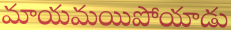
మాయమయిపోయాడు